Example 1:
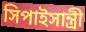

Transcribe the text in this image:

সিপাইসান্ত্রী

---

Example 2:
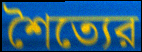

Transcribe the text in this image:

শৈত্যের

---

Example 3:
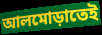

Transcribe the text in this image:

আলমোড়াতেই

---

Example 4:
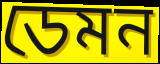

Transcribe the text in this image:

ডেমন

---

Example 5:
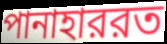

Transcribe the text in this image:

পানাহাররত